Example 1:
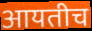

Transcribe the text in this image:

आयतीच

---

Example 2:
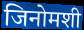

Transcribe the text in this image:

जिनोमशी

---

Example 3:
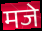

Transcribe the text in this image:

मजे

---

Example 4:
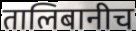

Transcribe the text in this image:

तालिबानीच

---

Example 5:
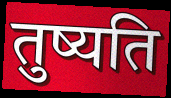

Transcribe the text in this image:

तुष्यति